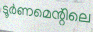
ടൂർണമെന്റിലെ